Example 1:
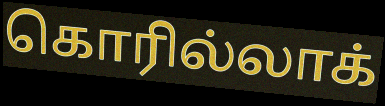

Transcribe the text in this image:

கொரில்லாக்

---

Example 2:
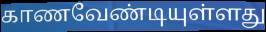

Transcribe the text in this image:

காணவேண்டியுள்ளது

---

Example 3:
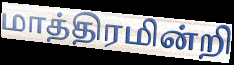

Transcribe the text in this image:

மாத்திரமின்றி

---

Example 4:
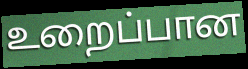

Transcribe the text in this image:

உறைப்பான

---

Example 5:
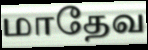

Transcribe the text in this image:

மாதேவ